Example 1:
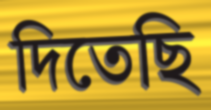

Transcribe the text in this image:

দিতেছি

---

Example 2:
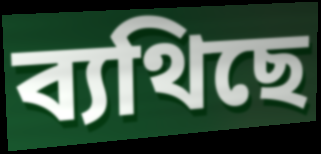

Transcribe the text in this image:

ব্যথিছে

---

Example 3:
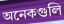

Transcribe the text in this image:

অনেকগুলি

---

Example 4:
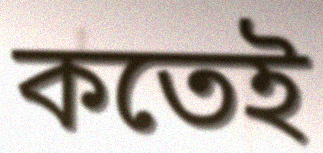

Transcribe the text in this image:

কতেই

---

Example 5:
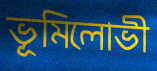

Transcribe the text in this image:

ভূমিলোভী